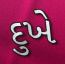
દુખે